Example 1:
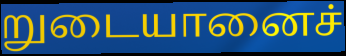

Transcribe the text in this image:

றுடையானைச்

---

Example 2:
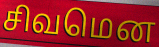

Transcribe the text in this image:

சிவமென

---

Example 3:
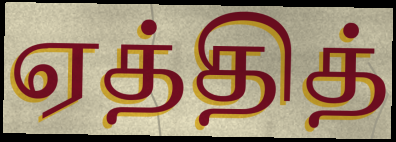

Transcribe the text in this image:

ஏத்தித்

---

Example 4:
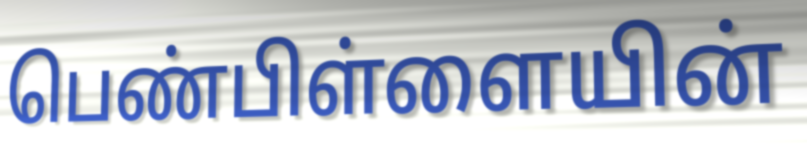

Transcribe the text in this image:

பெண்பிள்ளையின்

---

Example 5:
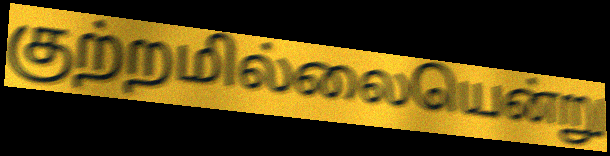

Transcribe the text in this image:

குற்றமில்லையென்று